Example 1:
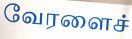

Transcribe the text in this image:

வேரளைச்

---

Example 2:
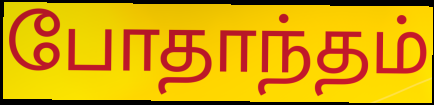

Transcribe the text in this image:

போதாந்தம்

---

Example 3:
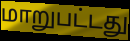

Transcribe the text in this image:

மாறுபட்டது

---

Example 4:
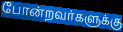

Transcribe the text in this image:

போன்றவர்களுக்கு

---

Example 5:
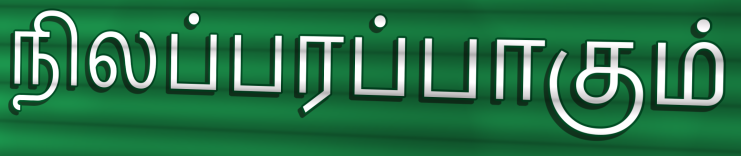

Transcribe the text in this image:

நிலப்பரப்பாகும்